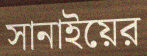
সানাইয়ের